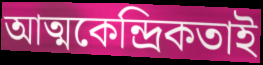
আত্মকেন্দ্রিকতাই